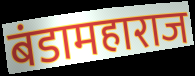
बंडामहाराज